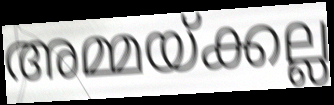
അമ്മയ്ക്കല്ല